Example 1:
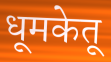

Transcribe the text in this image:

धूमकेतू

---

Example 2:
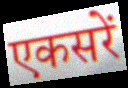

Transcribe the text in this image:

एकसरें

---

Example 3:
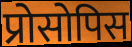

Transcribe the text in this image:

प्रोसोपिस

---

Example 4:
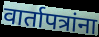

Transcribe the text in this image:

वार्तापत्रांना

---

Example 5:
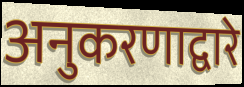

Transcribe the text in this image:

अनुकरणाद्वारे